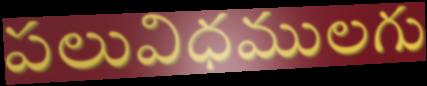
పలువిధములగు